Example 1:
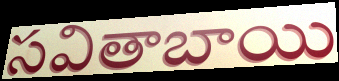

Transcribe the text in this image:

సవితాబాయి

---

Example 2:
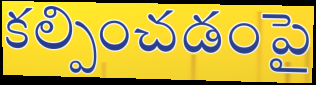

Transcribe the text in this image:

కల్పించడంపై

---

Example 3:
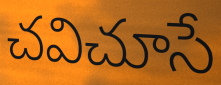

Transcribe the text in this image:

చవిచూసే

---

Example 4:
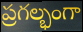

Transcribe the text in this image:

ప్రగల్భంగా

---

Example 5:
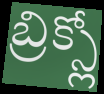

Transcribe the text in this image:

బ్రిక్స్లో